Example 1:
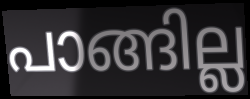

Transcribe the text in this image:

പാങ്ങില്ല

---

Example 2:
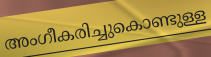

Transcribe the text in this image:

അംഗീകരിച്ചുകൊണ്ടുള്ള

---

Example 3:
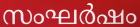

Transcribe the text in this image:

സംഘർഷം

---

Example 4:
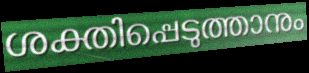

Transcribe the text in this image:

ശക്തിപ്പെടുത്താനും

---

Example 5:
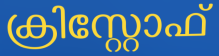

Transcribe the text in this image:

ക്രിസ്റ്റോഫ്